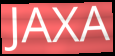
JAXA